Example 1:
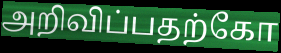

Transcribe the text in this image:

அறிவிப்பதற்கோ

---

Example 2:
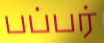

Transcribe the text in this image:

பப்பர்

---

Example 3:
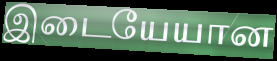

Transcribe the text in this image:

இடையேயான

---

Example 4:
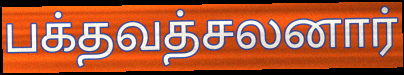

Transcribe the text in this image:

பக்தவத்சலனார்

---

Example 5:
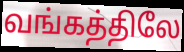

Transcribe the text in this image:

வங்கத்திலே